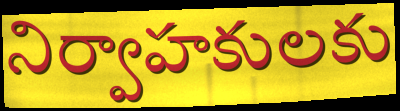
నిర్వాహకులకు